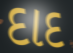
દાદ